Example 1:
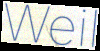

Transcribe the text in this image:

Weil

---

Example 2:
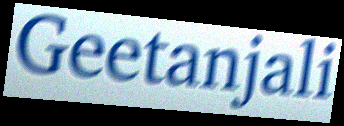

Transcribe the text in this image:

Geetanjali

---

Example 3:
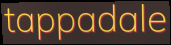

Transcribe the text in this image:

tappadale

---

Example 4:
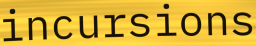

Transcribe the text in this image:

incursions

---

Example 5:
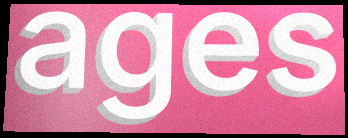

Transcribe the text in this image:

ages